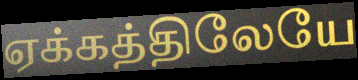
ஏக்கத்திலேயே